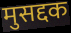
मुसद्दक